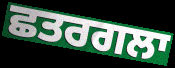
ਛਤਰਗਲਾ